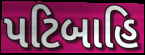
પટિબાહિ